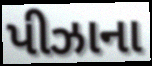
પીઝાના